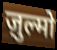
ज़ुल्मो